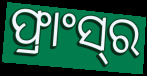
ଫ୍ରାଂସ୍‍ର